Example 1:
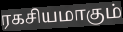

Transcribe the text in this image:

ரகசியமாகும்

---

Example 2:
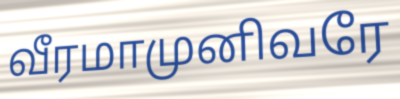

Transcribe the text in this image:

வீரமாமுனிவரே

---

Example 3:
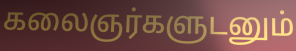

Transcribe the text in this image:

கலைஞர்களுடனும்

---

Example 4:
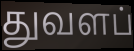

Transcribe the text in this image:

துவளப்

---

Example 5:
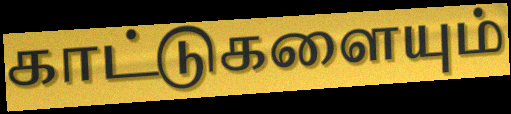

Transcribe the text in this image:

காட்டுகளையும்